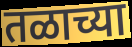
तळाच्या